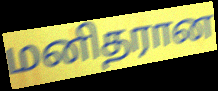
மனிதரான